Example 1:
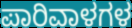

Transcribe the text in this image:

ಪಾರಿವಾಳಗಳ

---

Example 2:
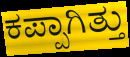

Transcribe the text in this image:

ಕಪ್ಪಾಗಿತ್ತು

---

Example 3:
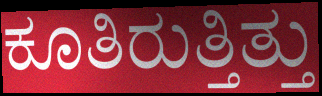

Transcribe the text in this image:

ಕೂತಿರುತ್ತಿತ್ತು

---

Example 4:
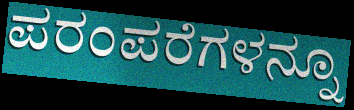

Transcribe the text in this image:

ಪರಂಪರೆಗಳನ್ನೂ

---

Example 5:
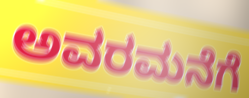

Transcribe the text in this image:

ಅವರಮನೆಗೆ